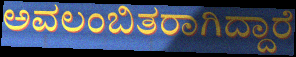
ಅವಲಂಬಿತರಾಗಿದ್ದಾರೆ